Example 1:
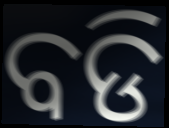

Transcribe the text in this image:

ବଡି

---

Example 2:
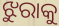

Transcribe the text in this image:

ଝୁରାକୁ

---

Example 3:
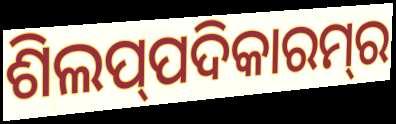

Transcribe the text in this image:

ଶିଲପ୍‍ପଦିକାରମ୍‍ର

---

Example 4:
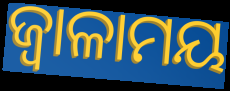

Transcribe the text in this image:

ଜ୍ୱାଳାମୟ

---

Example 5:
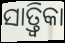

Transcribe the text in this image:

ସାତ୍ତ୍ୱିକା